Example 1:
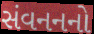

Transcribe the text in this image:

સંવનનનો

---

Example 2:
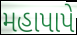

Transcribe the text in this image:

મહાપાપે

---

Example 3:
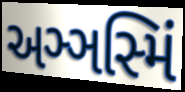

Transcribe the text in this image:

અઞ્ઞસ્મિં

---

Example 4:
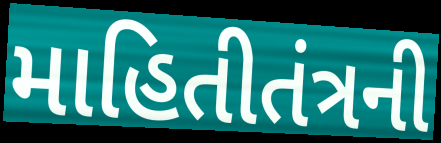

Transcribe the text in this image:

માહિતીતંત્રની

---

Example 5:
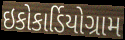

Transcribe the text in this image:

ઇકોકાર્ડિયોગ્રામ